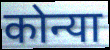
कोन्या